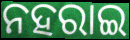
ନହରାଇ